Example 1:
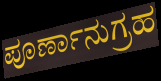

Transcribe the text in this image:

ಪೂರ್ಣಾನುಗ್ರಹ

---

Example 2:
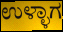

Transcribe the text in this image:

ಉಳ್ಳಾಗ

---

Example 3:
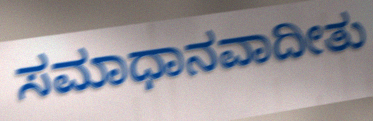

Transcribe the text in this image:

ಸಮಾಧಾನವಾದೀತು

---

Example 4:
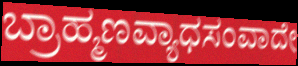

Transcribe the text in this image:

ಬ್ರಾಹ್ಮಣವ್ಯಾಧಸಂವಾದೇ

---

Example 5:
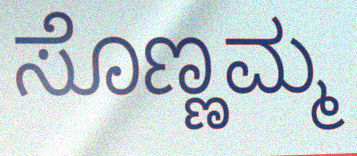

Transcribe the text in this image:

ಸೊಣ್ಣಮ್ಮ